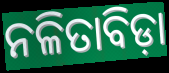
ନଳିତାବିଡ଼ା